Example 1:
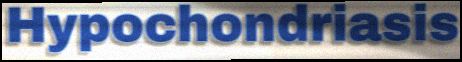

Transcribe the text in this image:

Hypochondriasis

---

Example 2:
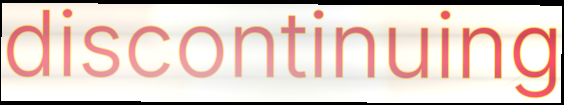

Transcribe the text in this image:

discontinuing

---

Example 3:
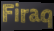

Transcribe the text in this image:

Firaq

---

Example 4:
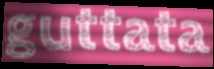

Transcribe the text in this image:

guttata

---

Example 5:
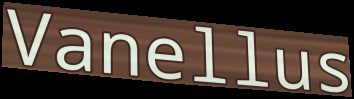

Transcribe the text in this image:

Vanellus